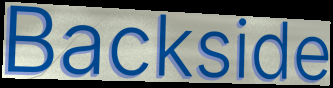
Backside